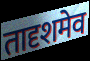
तादृशमेव